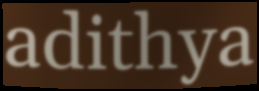
adithya